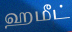
ஹமீட்